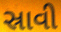
સ્રાવી